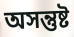
অসন্তুষ্ট